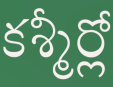
కశ్మీర్లో